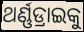
ଥର୍ଣ୍ଣଡ୍ରାଇକୁ